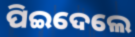
ପିଇଦେଲେ